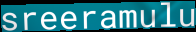
sreeramulu